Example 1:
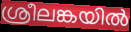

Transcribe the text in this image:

ശ്രീലങ്കയിൽ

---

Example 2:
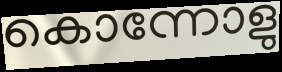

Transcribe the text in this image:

കൊന്നോളു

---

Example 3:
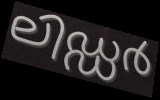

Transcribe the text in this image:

ലിഡ്ഡർ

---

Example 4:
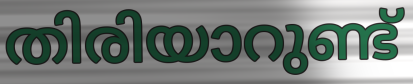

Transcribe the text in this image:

തിരിയാറുണ്ട്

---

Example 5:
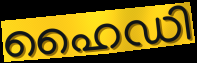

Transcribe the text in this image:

ഹൈഡി